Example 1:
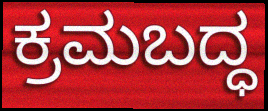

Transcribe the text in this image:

ಕ್ರಮಬದ್ಧ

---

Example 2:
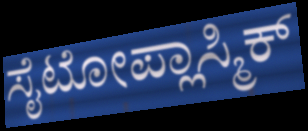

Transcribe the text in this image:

ಸೈಟೋಪ್ಲಾಸ್ಮಿಕ್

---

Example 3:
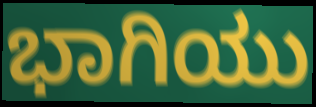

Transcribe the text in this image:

ಭಾಗಿಯು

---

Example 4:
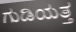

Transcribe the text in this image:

ಗುಡಿಯತ್ತ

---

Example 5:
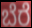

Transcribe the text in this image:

ಬೆರೆ